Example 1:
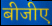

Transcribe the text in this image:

बीजीए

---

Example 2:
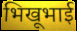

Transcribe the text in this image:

भिखूभाई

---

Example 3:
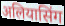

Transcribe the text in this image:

अलियासिंग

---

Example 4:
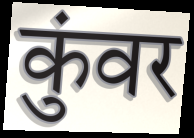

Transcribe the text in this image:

कुंवर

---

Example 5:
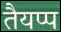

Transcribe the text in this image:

तैयप्प